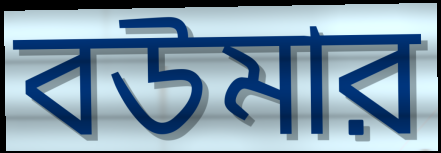
বউমার